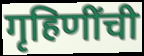
गृहिणींची